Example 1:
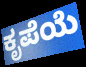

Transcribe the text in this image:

ಕೃಪೆಯೆ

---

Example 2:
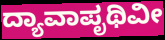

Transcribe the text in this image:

ದ್ಯಾವಾಪೃಥಿವೀ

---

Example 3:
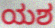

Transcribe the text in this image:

ಯಶ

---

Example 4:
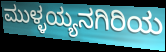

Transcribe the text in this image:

ಮುಳ್ಳಯ್ಯನಗಿರಿಯ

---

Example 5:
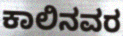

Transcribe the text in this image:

ಕಾಲಿನವರ